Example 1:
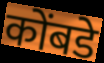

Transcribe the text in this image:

कोंबडे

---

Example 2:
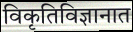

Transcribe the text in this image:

विकृतिविज्ञानात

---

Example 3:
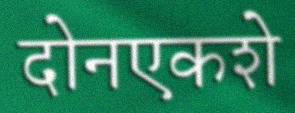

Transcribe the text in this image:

दोनएकशे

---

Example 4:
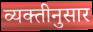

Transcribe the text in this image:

व्यक्तीनुसार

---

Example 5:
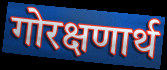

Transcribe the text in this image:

गोरक्षणार्थ